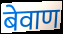
बेवाण